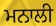
ਮਨਾਲੀ